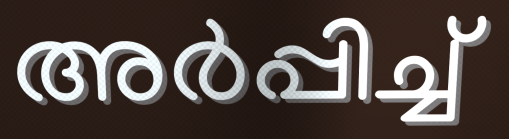
അർപ്പിച്ച്